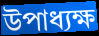
উপাধ্যক্ষ